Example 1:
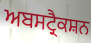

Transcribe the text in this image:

ਅਬਸਟ੍ਰੈਕਸ਼ਨ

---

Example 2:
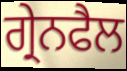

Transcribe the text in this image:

ਗ੍ਰੇਨਫੈਲ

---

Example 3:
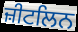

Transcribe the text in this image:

ਜ਼ੀਟਲਿਨ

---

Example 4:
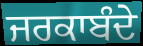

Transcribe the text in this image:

ਜਰਕਾਬੰਦੇ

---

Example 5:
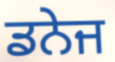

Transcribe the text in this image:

ਡਨੇਜ